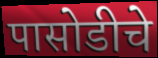
पासोडीचे